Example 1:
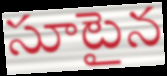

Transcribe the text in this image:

సూటైన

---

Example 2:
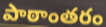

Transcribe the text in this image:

పాఠాంతరం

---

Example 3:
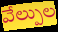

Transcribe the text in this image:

వేల్పుల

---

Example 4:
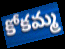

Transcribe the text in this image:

కోకమ్మ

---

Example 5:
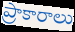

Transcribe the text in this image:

ప్రాకారాలు